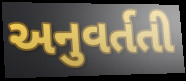
અનુવર્તતી